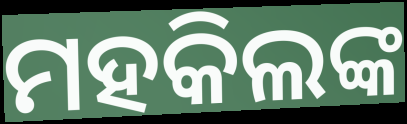
ମହକିଲଙ୍କ